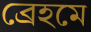
ব্রেহমে